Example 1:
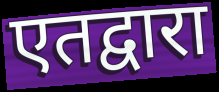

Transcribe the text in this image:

एतद्वारा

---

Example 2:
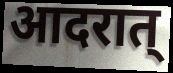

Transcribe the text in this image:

आदरात्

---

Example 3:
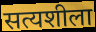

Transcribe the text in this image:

सत्यशीला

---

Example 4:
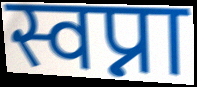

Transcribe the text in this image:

स्वप्ना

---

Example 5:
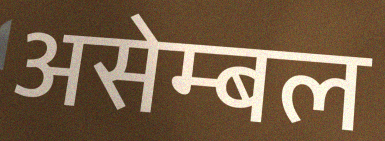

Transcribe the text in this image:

असेम्बल